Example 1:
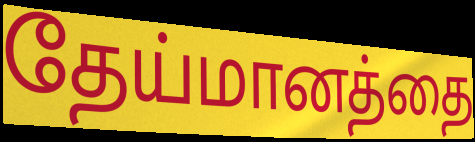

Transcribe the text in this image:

தேய்மானத்தை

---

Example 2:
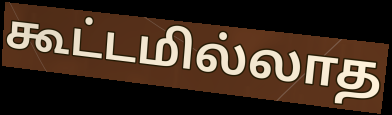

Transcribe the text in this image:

கூட்டமில்லாத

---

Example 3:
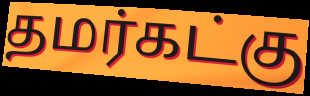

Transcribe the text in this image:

தமர்கட்கு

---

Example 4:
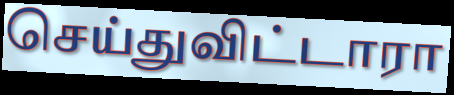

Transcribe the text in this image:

செய்துவிட்டாரா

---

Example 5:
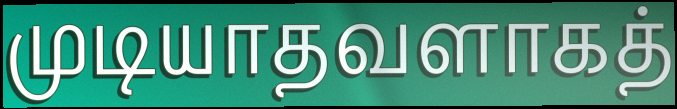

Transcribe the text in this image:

முடியாதவளாகத்